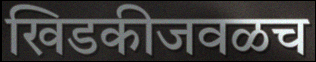
खिडकीजवळच